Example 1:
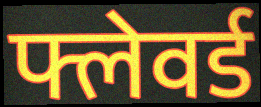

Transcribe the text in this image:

फ्लेवर्ड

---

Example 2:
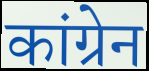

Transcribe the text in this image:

कांग्रेन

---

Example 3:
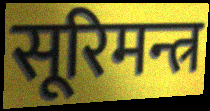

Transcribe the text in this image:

सूरिमन्त्र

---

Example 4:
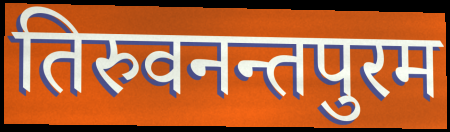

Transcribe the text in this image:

तिरुवनन्तपुरम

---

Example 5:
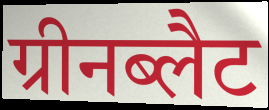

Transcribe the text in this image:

ग्रीनब्लैट